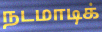
நடமாடிக்